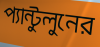
প্যান্টুলুনের